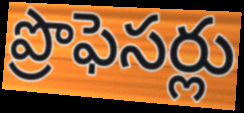
ప్రొఫెసర్లు